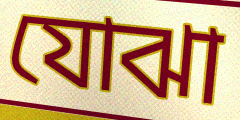
যোঝা